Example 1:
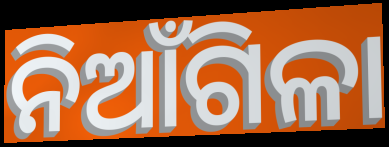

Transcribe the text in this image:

ନିଆଁଗିଳା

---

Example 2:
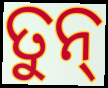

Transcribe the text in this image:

ତୁନ୍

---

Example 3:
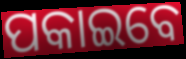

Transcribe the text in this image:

ପକାଇବେ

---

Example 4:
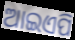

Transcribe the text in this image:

ଆଇଏପି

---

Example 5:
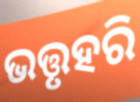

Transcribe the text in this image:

ଭତ୍ତୃହରି